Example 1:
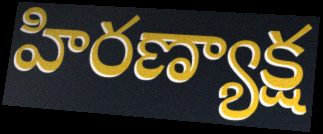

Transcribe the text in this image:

హిరణ్యాక్ష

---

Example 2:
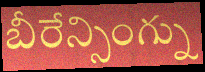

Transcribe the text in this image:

బీరేన్సింగ్ను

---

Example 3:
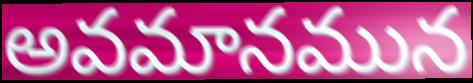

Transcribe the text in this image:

అవమానమున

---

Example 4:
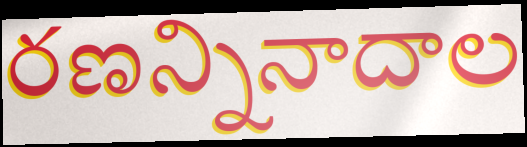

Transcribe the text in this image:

రణన్నినాదాల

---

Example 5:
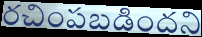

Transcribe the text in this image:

రచింపబడిందని